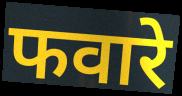
फवारे